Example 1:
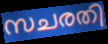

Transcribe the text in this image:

സചരതി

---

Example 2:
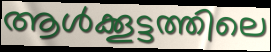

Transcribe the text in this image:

ആൾക്കൂട്ടത്തിലെ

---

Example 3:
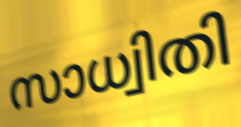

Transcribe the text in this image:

സാധ്വിതി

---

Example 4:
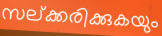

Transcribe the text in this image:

സല്ക്കരിക്കുകയും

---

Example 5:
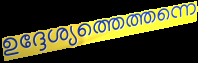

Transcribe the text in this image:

ഉദ്ദേശ്യത്തെത്തന്നെ